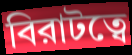
বিরাটত্বে